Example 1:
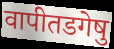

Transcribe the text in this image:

वापीतडगेषु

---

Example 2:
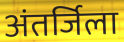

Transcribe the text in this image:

अंतर्जिला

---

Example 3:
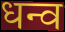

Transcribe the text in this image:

धन्व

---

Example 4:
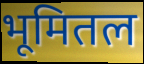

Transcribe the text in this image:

भूमितल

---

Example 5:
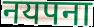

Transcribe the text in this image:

नयपना